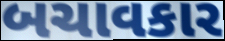
બચાવકાર